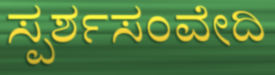
ಸ್ಪರ್ಶಸಂವೇದಿ